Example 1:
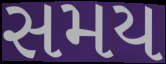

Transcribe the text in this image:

સમય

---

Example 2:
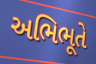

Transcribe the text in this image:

અભિભૂતે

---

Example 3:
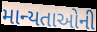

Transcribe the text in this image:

માન્યતાઓની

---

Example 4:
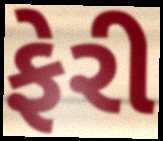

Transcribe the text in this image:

ફેરી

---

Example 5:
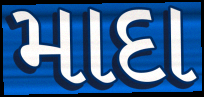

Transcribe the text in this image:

માદા